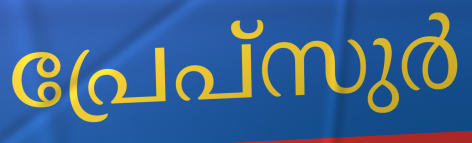
പ്രേപ്സുർ